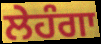
ਲੇਹੰਗਾ